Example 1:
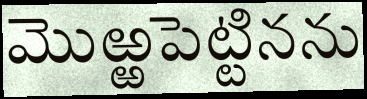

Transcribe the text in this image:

మొఱ్ఱపెట్టినను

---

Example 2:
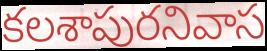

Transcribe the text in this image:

కలశాపురనివాస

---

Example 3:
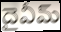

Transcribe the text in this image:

దైవీమ్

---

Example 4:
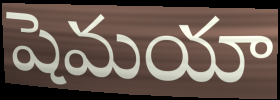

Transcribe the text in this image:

షెమయా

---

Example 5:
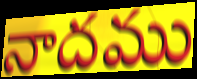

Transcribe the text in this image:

నాదము